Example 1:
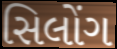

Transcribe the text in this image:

સિલોંગ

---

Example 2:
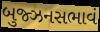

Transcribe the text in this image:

બુજ્ઝનસભાવં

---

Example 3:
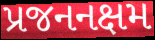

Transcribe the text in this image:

પ્રજનનક્ષમ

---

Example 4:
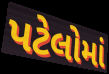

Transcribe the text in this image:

પટેલોમાં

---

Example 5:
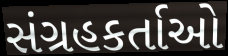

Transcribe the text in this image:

સંગ્રહકર્તાઓ